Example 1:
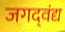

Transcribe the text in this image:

जगद्‌वंद्य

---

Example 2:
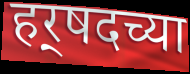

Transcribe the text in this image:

हर्षदच्या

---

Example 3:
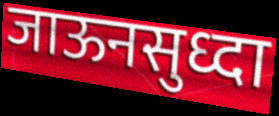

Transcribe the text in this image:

जाऊनसुध्दा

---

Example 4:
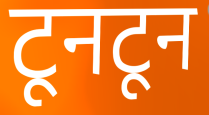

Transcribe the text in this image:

टूनटून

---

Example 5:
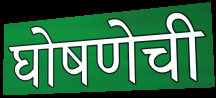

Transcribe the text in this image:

घोषणेची